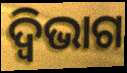
ଦ୍ୱିଭାଗ